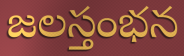
జలస్తంభన